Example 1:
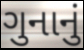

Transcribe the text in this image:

ગુનાનું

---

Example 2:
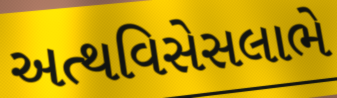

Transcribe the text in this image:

અત્થવિસેસલાભે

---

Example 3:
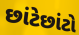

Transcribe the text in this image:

છાંટેછાંટો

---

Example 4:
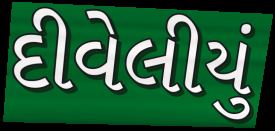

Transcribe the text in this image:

દીવેલીયું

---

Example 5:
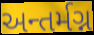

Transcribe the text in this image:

અન્તર્મગ્ન